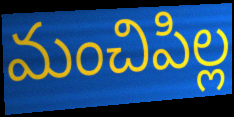
మంచిపిల్ల